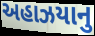
અહાઝયાનુ